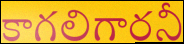
కాగలిగారనీ